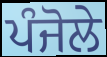
ਪੰਜੋਲੇ